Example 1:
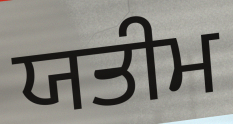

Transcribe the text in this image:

ਯਤੀਮ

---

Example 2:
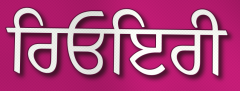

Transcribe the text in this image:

ਰਿਓਇਰੀ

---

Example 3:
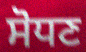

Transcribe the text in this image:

ਸੋਧਣ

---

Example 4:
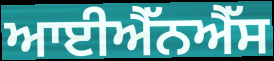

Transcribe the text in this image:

ਆਈਐੱਨਐੱਸ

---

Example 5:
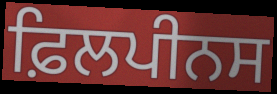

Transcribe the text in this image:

ਫ਼ਿਲਪੀਨਸ